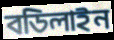
বডিলাইন